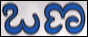
ಒಣ